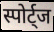
स्पोर्ट्ज